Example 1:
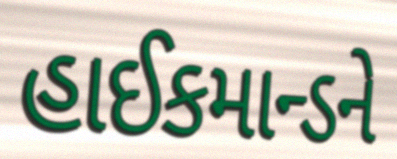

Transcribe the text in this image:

હાઈકમાન્ડને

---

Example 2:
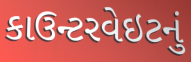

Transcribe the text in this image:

કાઉન્ટરવેઇટનું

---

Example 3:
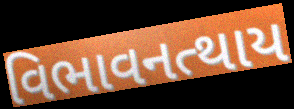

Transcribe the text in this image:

વિભાવનત્થાય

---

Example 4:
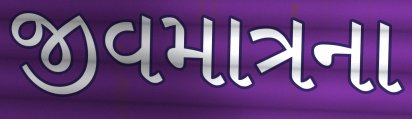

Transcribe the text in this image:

જીવમાત્રના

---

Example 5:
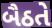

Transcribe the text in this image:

બૈઠતે